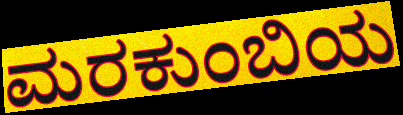
ಮರಕುಂಬಿಯ